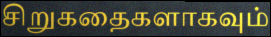
சிறுகதைகளாகவும்